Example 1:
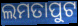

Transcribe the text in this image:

ଲମତାପୁଟ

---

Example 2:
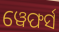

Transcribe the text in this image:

ୱେଫର୍ସ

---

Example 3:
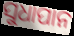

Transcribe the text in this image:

ସୁଧାପାନ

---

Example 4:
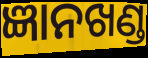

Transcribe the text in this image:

ଜ୍ଞାନଖଣ୍ଡ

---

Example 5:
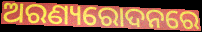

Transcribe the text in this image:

ଅରଣ୍ୟରୋଦନରେ